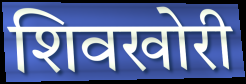
शिवखोरी